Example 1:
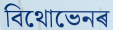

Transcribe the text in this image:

বিথোভেনৰ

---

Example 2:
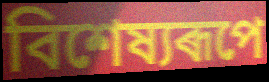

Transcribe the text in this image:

বিশেষ্যৰূপে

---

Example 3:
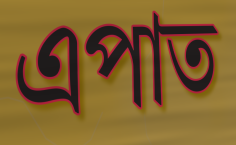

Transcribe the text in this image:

এপাত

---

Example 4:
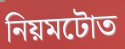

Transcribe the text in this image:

নিয়মটোত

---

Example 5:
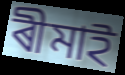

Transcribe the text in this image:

ৰীমাই